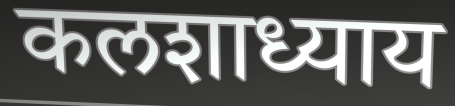
कलशाध्याय